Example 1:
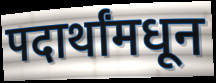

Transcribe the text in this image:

पदार्थांमधून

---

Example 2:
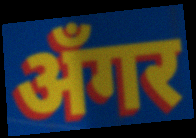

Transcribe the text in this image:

अँगर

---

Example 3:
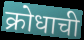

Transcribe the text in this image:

क्रोधाची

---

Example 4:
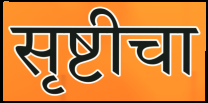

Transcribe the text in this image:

सृष्टीचा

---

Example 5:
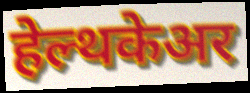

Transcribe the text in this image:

हेल्थकेअर